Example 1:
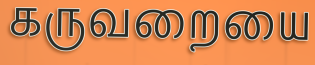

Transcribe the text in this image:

கருவறையை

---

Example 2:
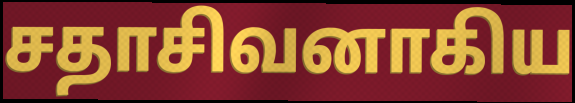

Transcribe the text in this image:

சதாசிவனாகிய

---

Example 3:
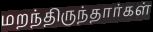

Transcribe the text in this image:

மறந்திருந்தார்கள்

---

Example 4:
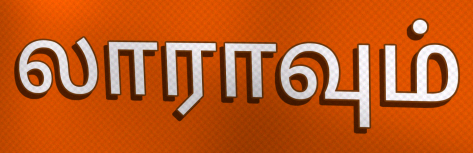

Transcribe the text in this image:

லாராவும்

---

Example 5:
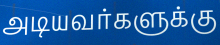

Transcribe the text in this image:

அடியவர்களுக்கு